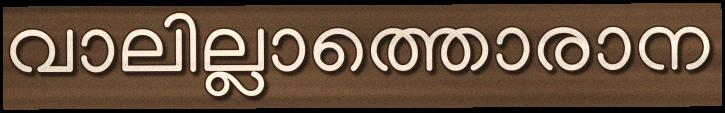
വാലില്ലാത്തൊരാന